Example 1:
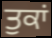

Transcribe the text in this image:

ਤੁਕਾਂ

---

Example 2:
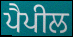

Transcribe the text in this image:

ਪੈਪੀਲ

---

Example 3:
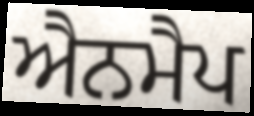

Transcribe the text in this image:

ਐਨਮੈਪ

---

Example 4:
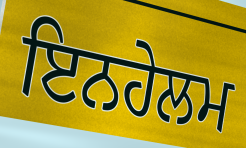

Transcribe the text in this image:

ਇਨਹੇਲਮ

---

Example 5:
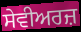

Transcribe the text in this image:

ਸੇਵੀਅਰਜ਼